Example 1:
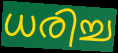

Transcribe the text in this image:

ധരിച്ച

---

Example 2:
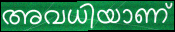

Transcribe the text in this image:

അവധിയാണ്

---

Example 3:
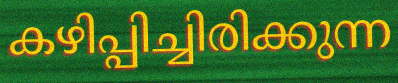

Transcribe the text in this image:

കഴിപ്പിച്ചിരിക്കുന്ന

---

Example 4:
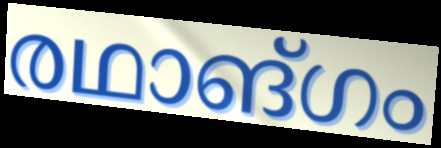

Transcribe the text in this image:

രഥാങ്ഗം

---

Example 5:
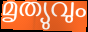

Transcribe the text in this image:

മൃത്യുവും